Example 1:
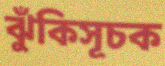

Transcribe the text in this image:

ঝুঁকিসূচক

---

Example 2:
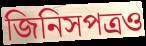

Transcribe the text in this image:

জিনিসপত্রও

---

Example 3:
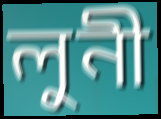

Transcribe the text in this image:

লুনী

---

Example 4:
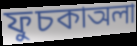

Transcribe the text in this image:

ফুচকাঅলা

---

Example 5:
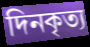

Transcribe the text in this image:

দিনকৃত্য